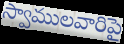
స్వాములవారిపై